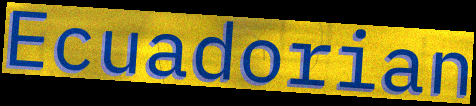
Ecuadorian